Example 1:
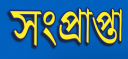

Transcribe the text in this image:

সংপ্রাপ্তা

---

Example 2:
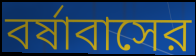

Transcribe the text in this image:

বর্ষাবাসের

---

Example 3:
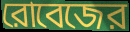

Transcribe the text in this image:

রোবেজের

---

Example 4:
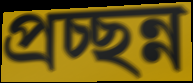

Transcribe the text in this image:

প্রচ্ছন্ন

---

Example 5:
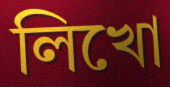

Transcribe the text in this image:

লিখো